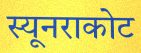
स्यूनराकोट